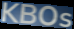
KBOs